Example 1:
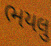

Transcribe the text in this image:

ભયલુ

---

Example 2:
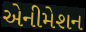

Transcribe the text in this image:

એનીમેશન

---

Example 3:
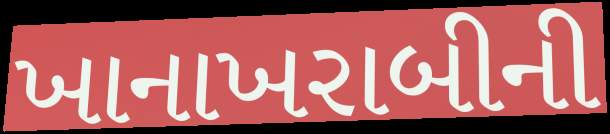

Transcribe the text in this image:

ખાનાખરાબીની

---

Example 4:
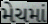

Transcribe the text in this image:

મેચમાં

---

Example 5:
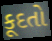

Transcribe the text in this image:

કૂદતો